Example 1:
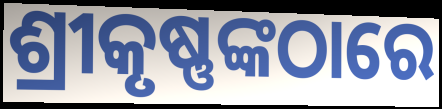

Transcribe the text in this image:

ଶ୍ରୀକୃଷ୍ଣଙ୍କଠାରେ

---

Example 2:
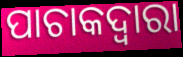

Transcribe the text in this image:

ପାଚାକଦ୍ଵାରା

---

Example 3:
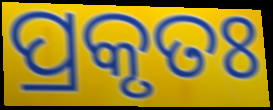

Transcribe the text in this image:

ପ୍ରକୃତଃ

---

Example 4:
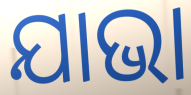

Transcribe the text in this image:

ଯାଭା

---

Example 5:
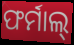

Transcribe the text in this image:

ଫର୍ମାଲ୍